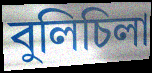
বুলিচিলা